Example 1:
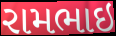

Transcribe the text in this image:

રામભાઇ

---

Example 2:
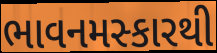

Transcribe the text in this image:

ભાવનમસ્કારથી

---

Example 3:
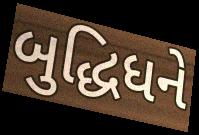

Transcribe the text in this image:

બુદ્ધિધને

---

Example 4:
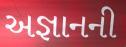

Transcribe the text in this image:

અજ્ઞાનની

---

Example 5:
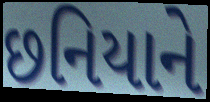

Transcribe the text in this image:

છનિયાને